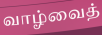
வாழ்வைத்